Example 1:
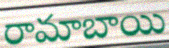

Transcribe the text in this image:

రామాబాయి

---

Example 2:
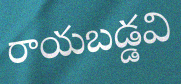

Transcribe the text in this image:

రాయబడ్డవి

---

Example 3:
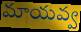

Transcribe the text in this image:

మాయవ్వ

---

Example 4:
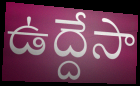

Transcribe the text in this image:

ఉద్దేసా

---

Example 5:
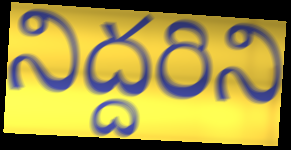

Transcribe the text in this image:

నిద్దరిని